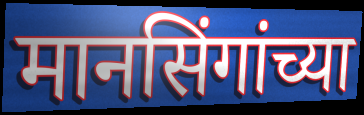
मानसिंगांच्या